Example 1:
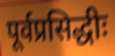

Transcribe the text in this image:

पूर्वप्रसिद्धीः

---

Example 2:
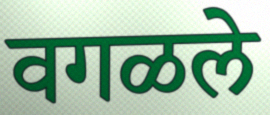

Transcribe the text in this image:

वगळले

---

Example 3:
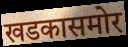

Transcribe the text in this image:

खडकासमोर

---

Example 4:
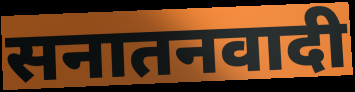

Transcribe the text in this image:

सनातनवादी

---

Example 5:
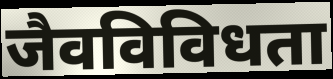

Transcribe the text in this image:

जैवविविधता